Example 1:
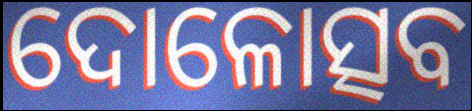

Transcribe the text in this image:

ଦୋଳୋତ୍ସବ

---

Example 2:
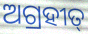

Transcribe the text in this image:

ଅଗ୍ରହୀତ୍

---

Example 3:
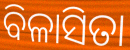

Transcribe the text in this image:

ବିଳାସିତା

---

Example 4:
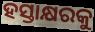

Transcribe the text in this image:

ହସ୍ତାକ୍ଷରକୁ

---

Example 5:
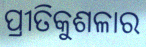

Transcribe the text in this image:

ପ୍ରୀତିକୁଶଳାର